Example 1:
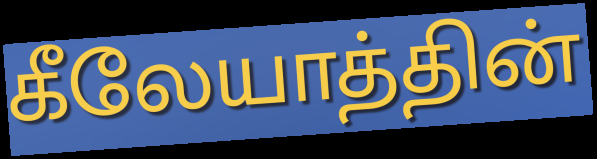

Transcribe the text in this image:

கீலேயாத்தின்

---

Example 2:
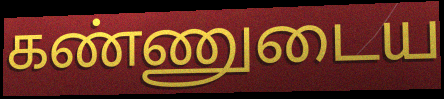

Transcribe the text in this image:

கண்ணுடைய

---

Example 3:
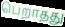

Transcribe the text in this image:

பெறாதது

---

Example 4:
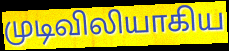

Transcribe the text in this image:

முடிவிலியாகிய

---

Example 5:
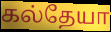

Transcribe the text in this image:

கல்தேயா